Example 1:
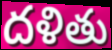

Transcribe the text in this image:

దళితు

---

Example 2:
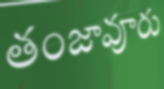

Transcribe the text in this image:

తంజావూరు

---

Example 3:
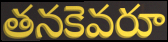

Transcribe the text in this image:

తనకెవరూ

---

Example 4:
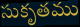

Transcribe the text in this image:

సుకృతము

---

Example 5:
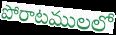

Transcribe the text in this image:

పోరాటములలో